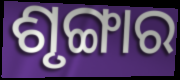
ଶୃଙ୍ଗାର